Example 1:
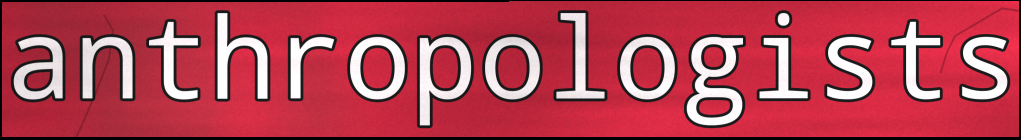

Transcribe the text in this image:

anthropologists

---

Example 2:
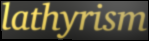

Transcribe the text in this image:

lathyrism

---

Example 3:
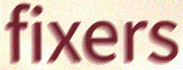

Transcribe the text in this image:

fixers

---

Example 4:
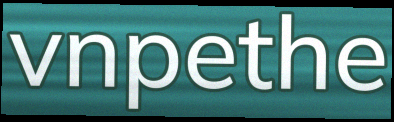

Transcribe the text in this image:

vnpethe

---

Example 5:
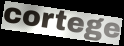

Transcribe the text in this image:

cortege